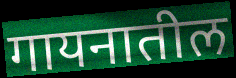
गायनातील